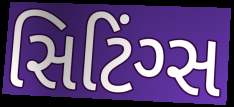
સિટિંગ્સ